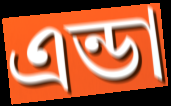
এন্ডা